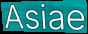
Asiae